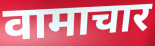
वामाचार